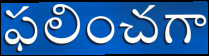
ఫలించగా